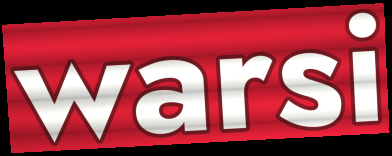
warsi